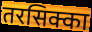
तरसिक्का